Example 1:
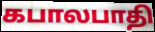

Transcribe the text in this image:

கபாலபாதி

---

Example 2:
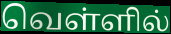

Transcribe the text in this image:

வெள்ளில்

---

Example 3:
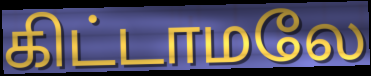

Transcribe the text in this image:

கிட்டாமலே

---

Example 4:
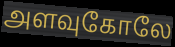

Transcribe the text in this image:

அளவுகோலே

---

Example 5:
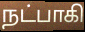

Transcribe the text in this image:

நட்பாகி